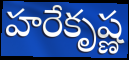
హరేకృష్ణ